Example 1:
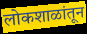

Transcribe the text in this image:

लोकशाळांतून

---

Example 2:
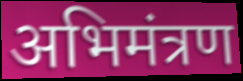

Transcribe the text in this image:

अभिमंत्रण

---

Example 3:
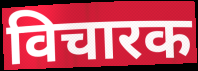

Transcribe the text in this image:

विचारक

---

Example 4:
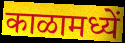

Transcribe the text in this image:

काळामध्यें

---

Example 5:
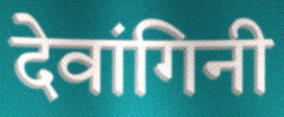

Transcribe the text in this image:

देवांगिनी